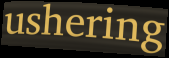
ushering